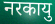
नरकायु